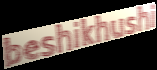
beshikhushi